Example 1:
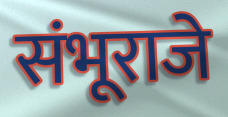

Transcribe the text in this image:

संभूराजे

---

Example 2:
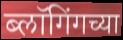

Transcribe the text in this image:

ब्लॉगिंगच्या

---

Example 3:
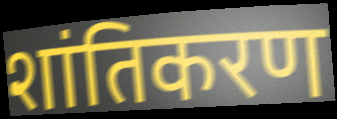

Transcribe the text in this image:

शांतिकरण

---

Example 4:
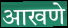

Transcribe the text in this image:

आखणे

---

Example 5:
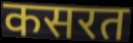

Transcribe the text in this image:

कसरत